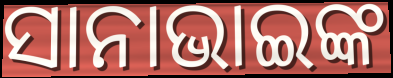
ସାନାଭାଇଙ୍କ